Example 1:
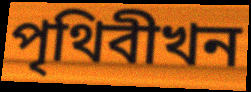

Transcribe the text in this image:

পৃথিবীখন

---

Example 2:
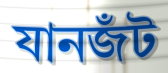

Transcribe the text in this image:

যানজঁট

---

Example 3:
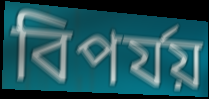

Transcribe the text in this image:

বিপৰ্যয়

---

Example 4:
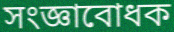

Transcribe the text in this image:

সংজ্ঞাবোধক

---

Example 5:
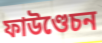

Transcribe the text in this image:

ফাউণ্ডেচন